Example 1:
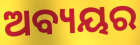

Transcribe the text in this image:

ଅବ୍ୟୟର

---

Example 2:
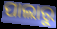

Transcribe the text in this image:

ପାଲାରୁ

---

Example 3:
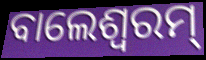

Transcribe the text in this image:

ବାଲେଶ୍ବରମ୍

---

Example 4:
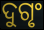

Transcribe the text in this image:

ଦୁଗୃଂ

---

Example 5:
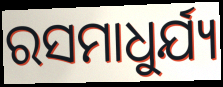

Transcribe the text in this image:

ରସମାଧୁର୍ଯ୍ୟ